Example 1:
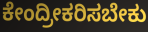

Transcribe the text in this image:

ಕೇಂದ್ರೀಕರಿಸಬೇಕು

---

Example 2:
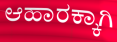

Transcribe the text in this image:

ಆಹಾರಕ್ಕಾಗಿ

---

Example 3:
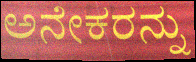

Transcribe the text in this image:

ಅನೇಕರನ್ನು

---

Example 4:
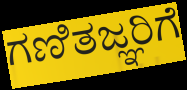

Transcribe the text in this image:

ಗಣಿತಜ್ಞರಿಗೆ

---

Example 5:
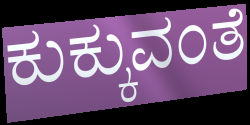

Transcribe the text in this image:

ಕುಕ್ಕುವಂತೆ